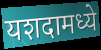
यशदामध्ये